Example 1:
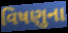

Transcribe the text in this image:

વિષણુના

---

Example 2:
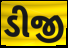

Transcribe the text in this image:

ડીજી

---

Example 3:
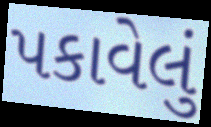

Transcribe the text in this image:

પકાવેલું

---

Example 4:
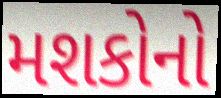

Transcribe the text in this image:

મશકોનો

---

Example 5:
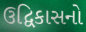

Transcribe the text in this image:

ઉદ્વિકાસનો